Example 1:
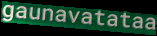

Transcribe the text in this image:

gaunavatataa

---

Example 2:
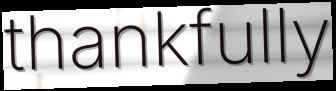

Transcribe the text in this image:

thankfully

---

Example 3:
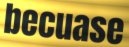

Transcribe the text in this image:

becuase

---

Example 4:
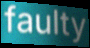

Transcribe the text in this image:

faulty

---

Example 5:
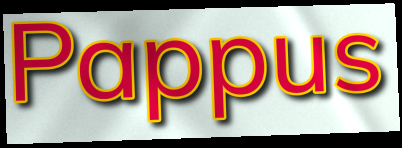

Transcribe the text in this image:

Pappus